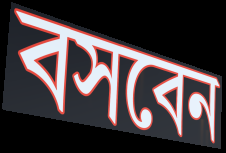
বসবেন